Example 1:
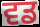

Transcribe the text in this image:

ਵਡ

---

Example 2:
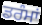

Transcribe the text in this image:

ਡਰੰਮਾਂ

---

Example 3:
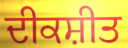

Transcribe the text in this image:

ਦੀਕਸ਼ੀਤ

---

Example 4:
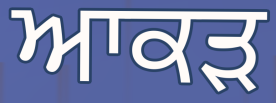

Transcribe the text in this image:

ਆਕੜ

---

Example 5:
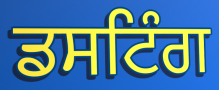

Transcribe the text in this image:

ਡਸਟਿੰਗ